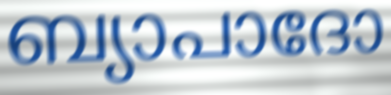
ബ്യാപാദോ